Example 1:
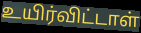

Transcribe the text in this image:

உயிர்விட்டாள்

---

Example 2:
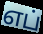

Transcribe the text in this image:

எப்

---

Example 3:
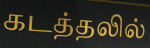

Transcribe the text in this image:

கடத்தலில்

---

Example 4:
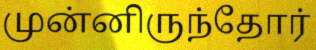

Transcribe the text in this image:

முன்னிருந்தோர்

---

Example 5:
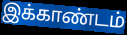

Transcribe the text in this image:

இக்காண்டம்